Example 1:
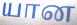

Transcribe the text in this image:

யான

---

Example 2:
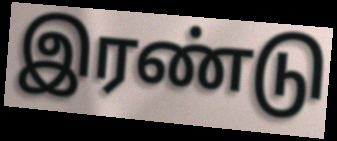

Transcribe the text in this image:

இரண்டு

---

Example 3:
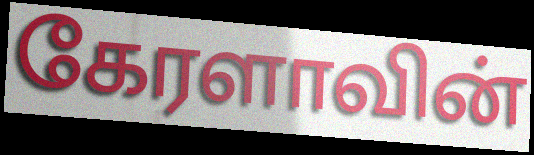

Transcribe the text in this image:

கேரளாவின்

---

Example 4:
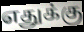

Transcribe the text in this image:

எதுக்கு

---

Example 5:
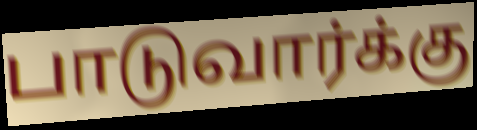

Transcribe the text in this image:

பாடுவார்க்கு